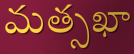
మత్సఖా